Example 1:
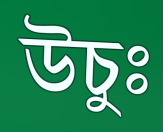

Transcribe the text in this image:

উচুঃ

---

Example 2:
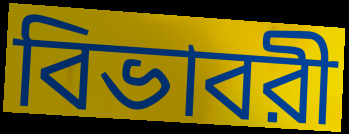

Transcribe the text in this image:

বিভাবরী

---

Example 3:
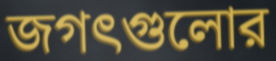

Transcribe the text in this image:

জগৎগুলোর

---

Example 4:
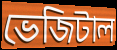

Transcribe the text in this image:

ভেজিটাল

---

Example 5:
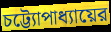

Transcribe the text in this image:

চট্ট্যোপাধ্যায়ের